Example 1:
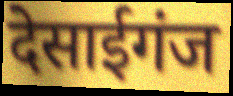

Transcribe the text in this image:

देसाईगंज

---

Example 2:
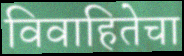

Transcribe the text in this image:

विवाहितेचा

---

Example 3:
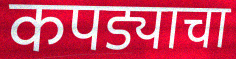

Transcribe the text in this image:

कपड्याचा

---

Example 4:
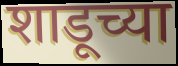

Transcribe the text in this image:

शाडूच्या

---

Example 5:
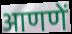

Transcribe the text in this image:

आणणें